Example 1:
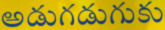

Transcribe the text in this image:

అడుగడుగుకు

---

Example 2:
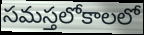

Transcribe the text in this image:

సమస్తలోకాలలో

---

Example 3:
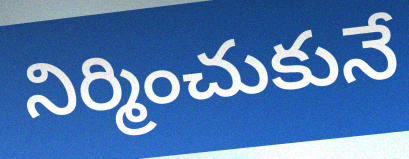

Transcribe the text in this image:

నిర్మించుకునే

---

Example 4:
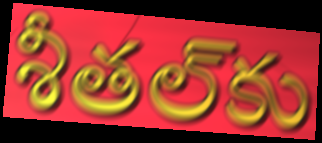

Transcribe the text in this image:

శీతల్‌కు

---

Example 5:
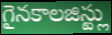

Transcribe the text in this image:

గైనకాలజిస్ట్లు